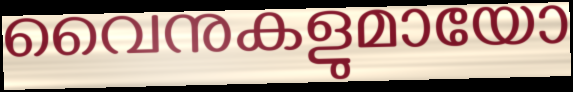
വൈനുകളുമായോ